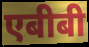
एबीबी